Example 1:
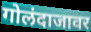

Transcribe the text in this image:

गोलंदाजावर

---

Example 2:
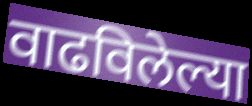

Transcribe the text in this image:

वाढविलेल्या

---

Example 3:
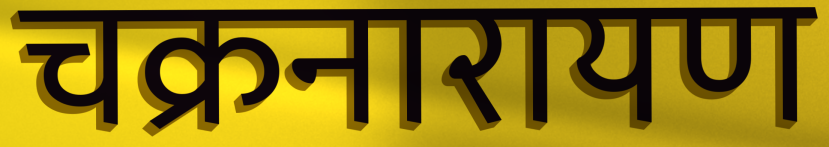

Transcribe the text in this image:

चक्रनारायण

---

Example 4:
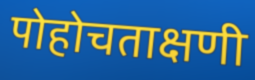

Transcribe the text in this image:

पोहोचताक्षणी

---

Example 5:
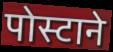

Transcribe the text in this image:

पोस्टाने